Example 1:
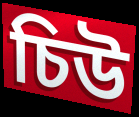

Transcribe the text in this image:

চিউ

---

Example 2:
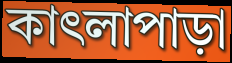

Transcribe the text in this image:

কাৎলাপাড়া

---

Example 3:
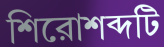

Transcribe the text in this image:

শিরোশব্দটি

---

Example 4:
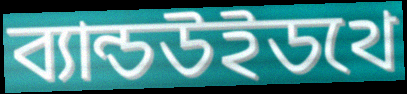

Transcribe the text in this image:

ব্যান্ডউইডথে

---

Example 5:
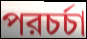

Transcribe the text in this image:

পরচর্চা